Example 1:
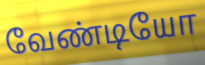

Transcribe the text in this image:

வேண்டியோ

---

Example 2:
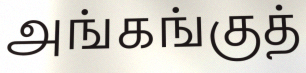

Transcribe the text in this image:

அங்கங்குத்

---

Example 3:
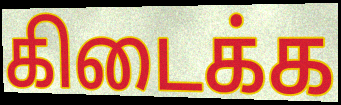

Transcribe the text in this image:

கிடைக்க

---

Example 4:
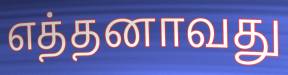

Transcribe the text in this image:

எத்தனாவது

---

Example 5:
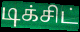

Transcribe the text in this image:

டிக்சிட்